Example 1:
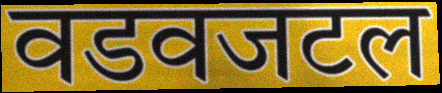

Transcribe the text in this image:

वडवजटल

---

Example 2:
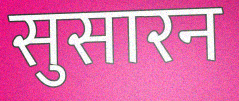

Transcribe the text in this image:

सुसारन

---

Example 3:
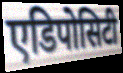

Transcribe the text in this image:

एडिपोसिटी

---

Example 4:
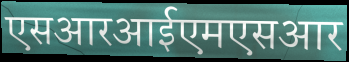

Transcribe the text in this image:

एसआरआईएमएसआर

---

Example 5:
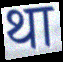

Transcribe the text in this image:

था